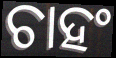
ଚାହଂ